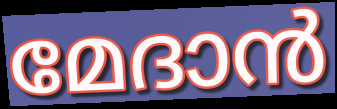
മേദാൻ